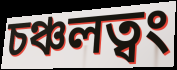
চঞ্চলত্বং